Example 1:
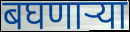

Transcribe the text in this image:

बघणाऱ्या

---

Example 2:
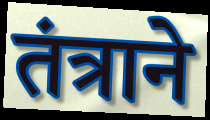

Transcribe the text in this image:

तंत्राने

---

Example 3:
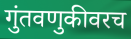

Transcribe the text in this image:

गुंतवणुकीवरच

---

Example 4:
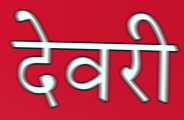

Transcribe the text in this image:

देवरी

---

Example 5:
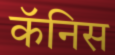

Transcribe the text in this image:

कॅनिस